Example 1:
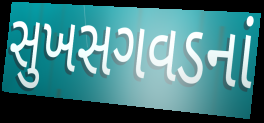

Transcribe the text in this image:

સુખસગવડનાં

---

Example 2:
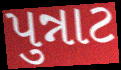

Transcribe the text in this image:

પુન્નાટ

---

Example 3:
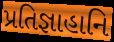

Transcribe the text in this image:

પ્રતિજ્ઞાહાનિ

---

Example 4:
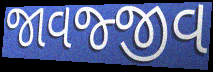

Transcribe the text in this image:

જાવજ્જીવ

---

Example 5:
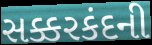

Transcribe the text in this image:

સક્કરકંદની